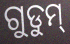
ଗୁଡୁମ୍